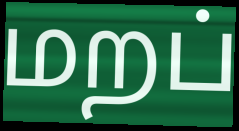
மறப்